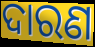
ଦାରଣ